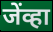
जेंव्हा